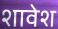
शावेश